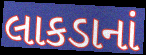
લાકડાનાં